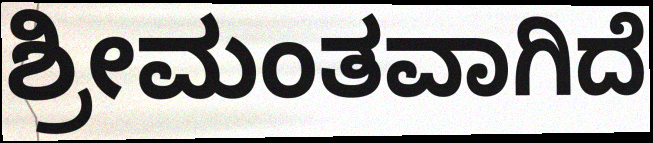
ಶ್ರೀಮಂತವಾಗಿದೆ